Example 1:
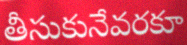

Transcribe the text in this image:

తీసుకునేవరకూ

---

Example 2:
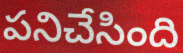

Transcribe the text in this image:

పనిచేసింది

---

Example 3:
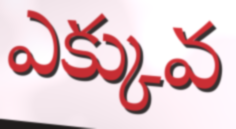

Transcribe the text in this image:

ఎక్కువ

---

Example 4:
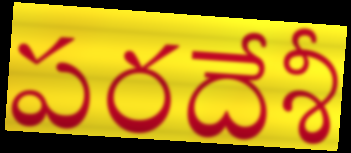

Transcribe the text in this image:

పరదేశీ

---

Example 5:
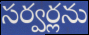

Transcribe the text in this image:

సర్వర్లను